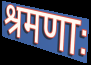
श्रमणाः